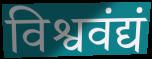
विश्ववंद्यं